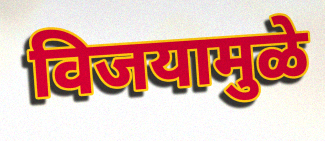
विजयामुळे